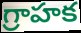
గ్రాహక